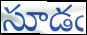
సూడఁ